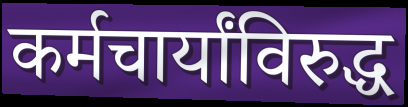
कर्मचार्यांविरुद्ध